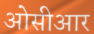
ओसीआर